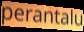
perantalu